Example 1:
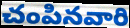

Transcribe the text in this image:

చంపినవారి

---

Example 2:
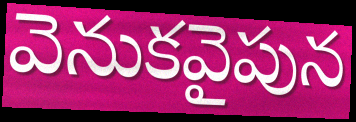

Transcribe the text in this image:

వెనుకవైపున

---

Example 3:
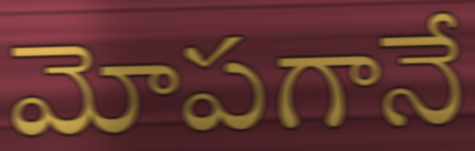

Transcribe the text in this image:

మోపగానే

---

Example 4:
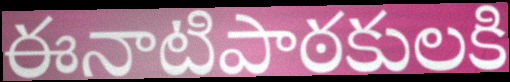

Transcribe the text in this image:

ఈనాటిపాఠకులకి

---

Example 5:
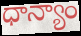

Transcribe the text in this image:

ధాన్యాం